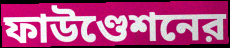
ফাউণ্ডেশনের